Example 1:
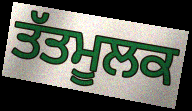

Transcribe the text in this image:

ਤੱਤਮੂਲਕ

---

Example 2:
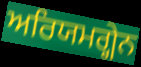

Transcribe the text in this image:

ਅਰਿਯਮਗ੍ਗੇਨ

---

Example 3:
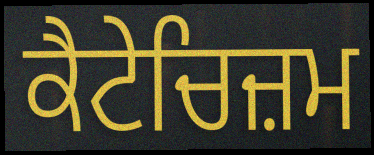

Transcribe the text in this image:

ਕੈਟੇਚਿਜ਼ਮ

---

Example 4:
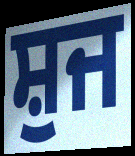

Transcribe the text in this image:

ਸ਼ੁਜ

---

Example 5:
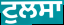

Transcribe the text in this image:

ਟੁਲਸਾ